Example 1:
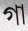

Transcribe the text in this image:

গা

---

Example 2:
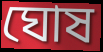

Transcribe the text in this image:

ঘোষ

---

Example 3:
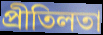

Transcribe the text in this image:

প্ৰীতিলতা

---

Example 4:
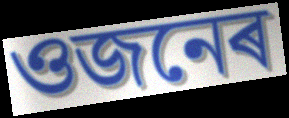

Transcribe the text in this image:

ওজনেৰ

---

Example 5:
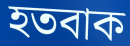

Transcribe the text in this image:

হতবাক